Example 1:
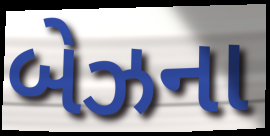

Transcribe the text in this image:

બેઝના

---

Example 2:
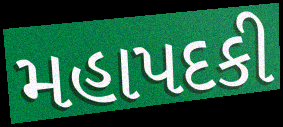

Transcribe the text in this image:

મહાપદકી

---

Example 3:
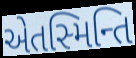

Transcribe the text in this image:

એતસ્મિન્તિ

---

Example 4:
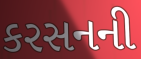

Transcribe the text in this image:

કરસનની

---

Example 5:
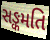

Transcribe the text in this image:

સઙ્કમતિ